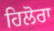
ਹਿਲੋਰਾ